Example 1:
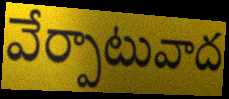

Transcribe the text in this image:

వేర్పాటువాద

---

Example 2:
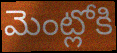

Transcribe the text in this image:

మెంట్లోకి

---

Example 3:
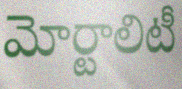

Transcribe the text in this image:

మోర్టాలిటీ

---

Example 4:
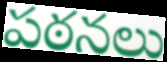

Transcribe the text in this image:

పఠనలు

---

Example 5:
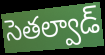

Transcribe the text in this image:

సెతల్వాడ్